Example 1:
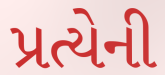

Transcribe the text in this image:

પ્રત્યેની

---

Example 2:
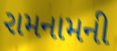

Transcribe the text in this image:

રામનામની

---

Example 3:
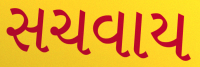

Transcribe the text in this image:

સચવાય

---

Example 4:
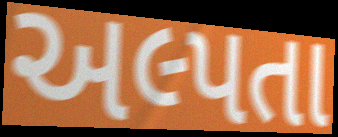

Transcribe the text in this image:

અલ્પતા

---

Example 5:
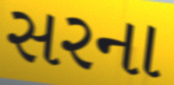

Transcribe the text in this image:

સરના